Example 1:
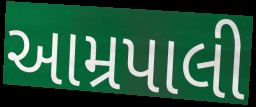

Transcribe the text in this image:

આમ્રપાલી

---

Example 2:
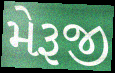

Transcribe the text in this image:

મેરૂજી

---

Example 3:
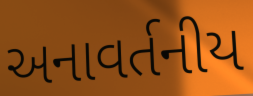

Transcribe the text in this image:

અનાવર્તનીય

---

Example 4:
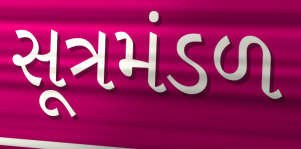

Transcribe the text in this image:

સૂત્રમંડળ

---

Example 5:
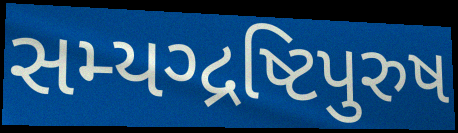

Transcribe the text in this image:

સમ્યગ્દ્રષ્ટિપુરુષ